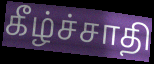
கீழ்ச்சாதி